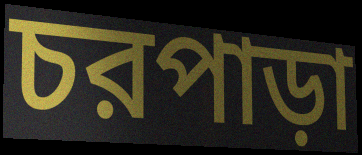
চরপাড়া